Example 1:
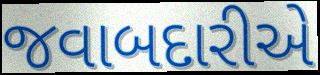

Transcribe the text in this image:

જવાબદારીએ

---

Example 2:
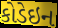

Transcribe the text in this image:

કોડેઇન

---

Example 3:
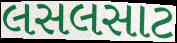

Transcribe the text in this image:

લસલસાટ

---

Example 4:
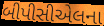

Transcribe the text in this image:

બીપીસીએલના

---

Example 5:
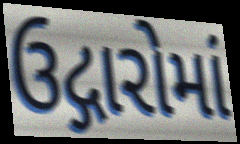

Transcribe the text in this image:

ઉદ્ગારોમાં